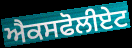
ਐਕਸਫੋਲੀਏਟ